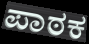
ಪಾಠಕ